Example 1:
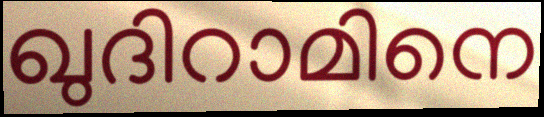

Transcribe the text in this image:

ഖുദിറാമിനെ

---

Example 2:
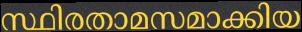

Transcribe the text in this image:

സ്ഥിരതാമസമാക്കിയ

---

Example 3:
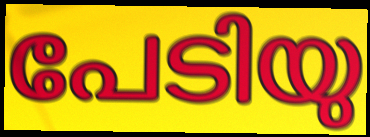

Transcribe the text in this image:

പേടിയു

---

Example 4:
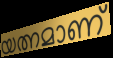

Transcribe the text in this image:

യത്നമാണ്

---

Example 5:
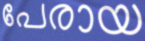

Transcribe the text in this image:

പേരായ